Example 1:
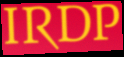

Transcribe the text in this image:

IRDP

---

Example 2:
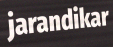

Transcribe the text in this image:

jarandikar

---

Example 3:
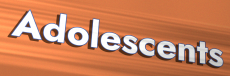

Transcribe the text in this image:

Adolescents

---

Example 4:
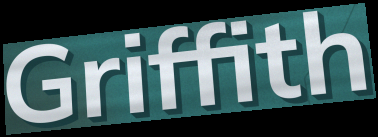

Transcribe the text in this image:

Griffith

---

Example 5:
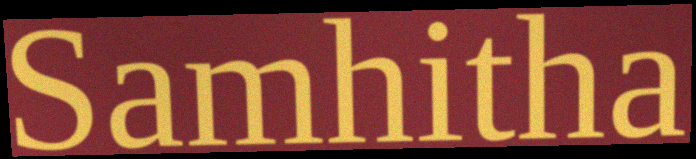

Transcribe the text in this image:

Samhitha